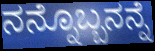
ನನ್ನೊಬ್ಬನನ್ನೆ